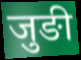
जुङी